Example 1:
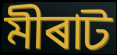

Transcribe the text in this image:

মীৰাট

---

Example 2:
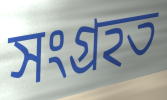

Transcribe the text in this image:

সংগ্ৰহত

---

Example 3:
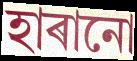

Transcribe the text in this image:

হাৰানো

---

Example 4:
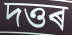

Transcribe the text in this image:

দত্তৰ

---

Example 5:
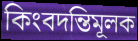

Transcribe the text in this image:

কিংবদন্তিমূলক